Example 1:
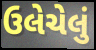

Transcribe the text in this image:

ઉલેચેલું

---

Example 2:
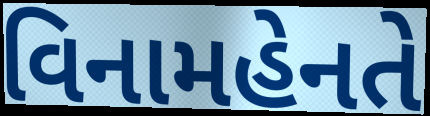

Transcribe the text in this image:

વિનામહેનતે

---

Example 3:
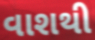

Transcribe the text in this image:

વાશથી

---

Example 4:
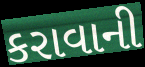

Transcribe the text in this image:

કરાવાની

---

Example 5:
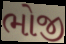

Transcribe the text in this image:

ભોજી